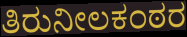
ತಿರುನೀಲಕಂಠರ